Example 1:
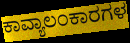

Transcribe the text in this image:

ಕಾವ್ಯಾಲಂಕಾರಗಳ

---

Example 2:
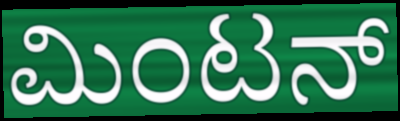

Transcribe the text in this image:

ಮಿಂಟನ್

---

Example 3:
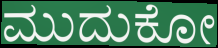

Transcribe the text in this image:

ಮುದುಕೋ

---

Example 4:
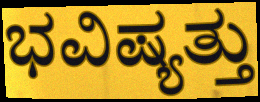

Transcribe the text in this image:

ಭವಿಷ್ಯತ್ತು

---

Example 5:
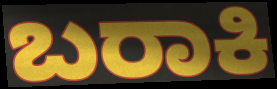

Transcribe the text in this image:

ಬರಾಕಿ